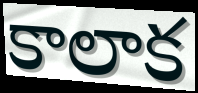
కాలాక